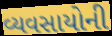
વ્યવસાયોની